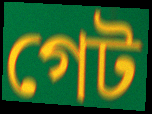
গেট